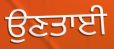
ਉਣਤਾਈ